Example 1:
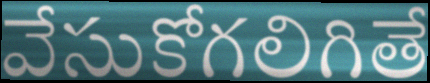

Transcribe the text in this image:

వేసుకోగలిగితే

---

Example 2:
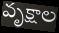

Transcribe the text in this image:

వృక్షాల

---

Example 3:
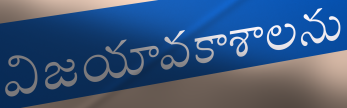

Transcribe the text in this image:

విజయావకాశాలను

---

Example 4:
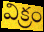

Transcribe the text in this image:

విక్రం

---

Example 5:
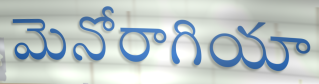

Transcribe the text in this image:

మెనోరాగియా